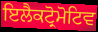
ਇਲੈਕਟ੍ਰੋਮੋਟਿਵ